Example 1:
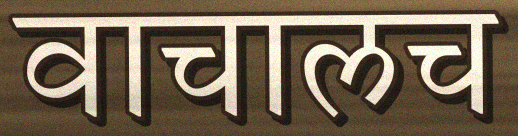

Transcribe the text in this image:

वाचालच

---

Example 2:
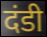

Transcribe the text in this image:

दंडी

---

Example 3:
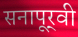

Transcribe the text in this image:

सनापूर्वी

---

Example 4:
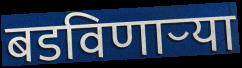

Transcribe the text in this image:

बडविणाऱ्या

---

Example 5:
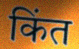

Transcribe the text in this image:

किंत